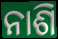
ନାଶି